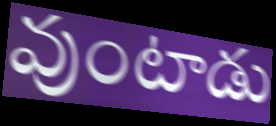
వుంటాడు